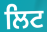
ਲਿਟ